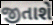
જીતાશે